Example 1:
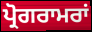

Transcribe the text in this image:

ਪ੍ਰੋਗਰਾਮਰਾਂ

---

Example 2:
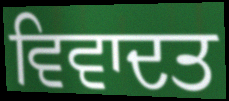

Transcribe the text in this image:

ਵਿਵਾਦਤ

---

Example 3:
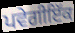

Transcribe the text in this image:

ਪਵੇਗੀਇੱਕ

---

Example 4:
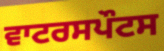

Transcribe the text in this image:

ਵਾਟਰਸਪੌਟਸ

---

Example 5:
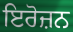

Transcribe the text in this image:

ਇਰੋਜ਼ਨ